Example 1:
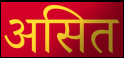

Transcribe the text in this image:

असित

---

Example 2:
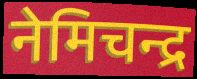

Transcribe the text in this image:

नेमिचन्द्र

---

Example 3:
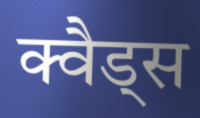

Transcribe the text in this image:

क्वैड्स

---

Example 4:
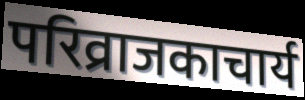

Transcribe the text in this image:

परिव्राजकाचार्य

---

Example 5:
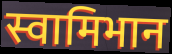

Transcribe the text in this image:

स्वामिभान